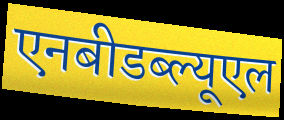
एनबीडब्ल्यूएल